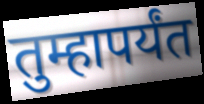
तुम्हापर्यंत